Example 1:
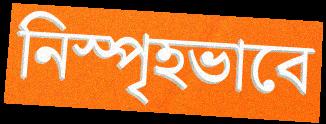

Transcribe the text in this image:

নিস্পৃহভাবে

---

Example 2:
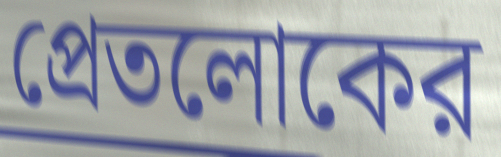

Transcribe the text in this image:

প্রেতলোকের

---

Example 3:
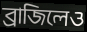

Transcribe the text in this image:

ব্রাজিলেও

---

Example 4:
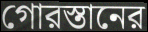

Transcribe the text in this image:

গোরস্তানের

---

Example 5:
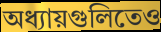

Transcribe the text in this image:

অধ্যায়গুলিতেও